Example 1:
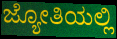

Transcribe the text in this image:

ಜ್ಯೋತಿಯಲ್ಲಿ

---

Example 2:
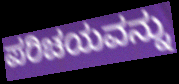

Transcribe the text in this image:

ಪರಿಚಯವನ್ನು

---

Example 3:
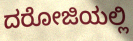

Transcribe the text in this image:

ದರೋಜಿಯಲ್ಲಿ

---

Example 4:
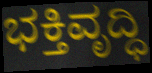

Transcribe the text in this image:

ಭಕ್ತಿವೃದ್ಧಿ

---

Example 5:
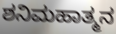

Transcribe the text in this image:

ಶನಿಮಹಾತ್ಮನ